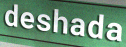
deshada